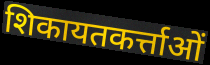
शिकायतकर्त्ताओं